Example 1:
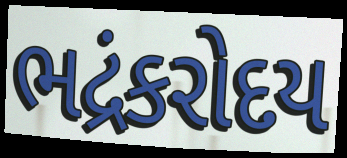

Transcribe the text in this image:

ભદ્રંકરોદય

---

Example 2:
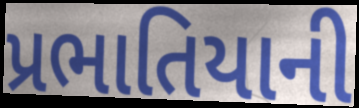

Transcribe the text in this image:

પ્રભાતિયાની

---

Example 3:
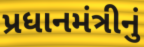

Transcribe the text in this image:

પ્રધાનમંત્રીનું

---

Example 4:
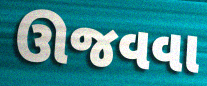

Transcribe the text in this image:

ઊજવવા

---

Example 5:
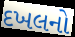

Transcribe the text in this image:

દખલનો